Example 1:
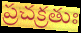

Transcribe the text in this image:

ప్రచక్రతుః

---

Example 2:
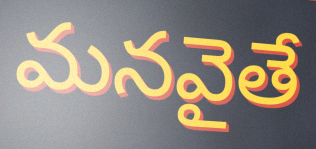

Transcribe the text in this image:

మనవైతే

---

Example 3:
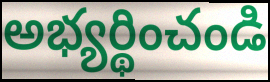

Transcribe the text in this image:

అభ్యర్థించండి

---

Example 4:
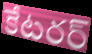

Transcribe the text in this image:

కేటరర్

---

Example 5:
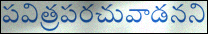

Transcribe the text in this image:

పవిత్రపరచువాడనని